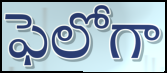
ఫెలోగా